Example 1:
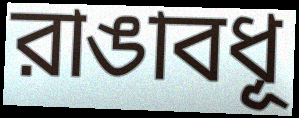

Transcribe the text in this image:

রাঙাবধূ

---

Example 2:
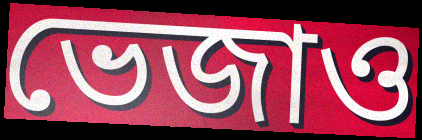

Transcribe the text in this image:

ভেজাও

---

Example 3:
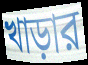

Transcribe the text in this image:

খাড়ার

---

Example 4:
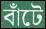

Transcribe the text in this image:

বাঁটে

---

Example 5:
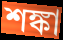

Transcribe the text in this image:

শঙ্কা